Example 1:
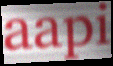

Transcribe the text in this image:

aapi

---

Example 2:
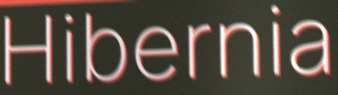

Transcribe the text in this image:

Hibernia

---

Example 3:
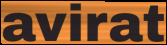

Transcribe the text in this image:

avirat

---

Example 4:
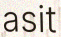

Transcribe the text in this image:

asit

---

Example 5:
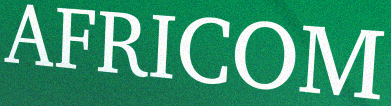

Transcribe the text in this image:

AFRICOM